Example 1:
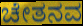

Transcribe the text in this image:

ಚೇತನವ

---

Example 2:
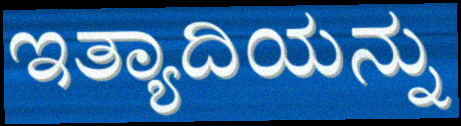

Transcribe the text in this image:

ಇತ್ಯಾದಿಯನ್ನು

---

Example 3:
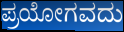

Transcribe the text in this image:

ಪ್ರಯೋಗವದು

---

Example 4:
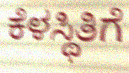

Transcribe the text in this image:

ಕೆಳಸ್ಥಿತಿಗೆ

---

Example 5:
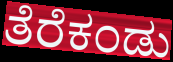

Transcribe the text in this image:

ತೆರೆಕಂಡು